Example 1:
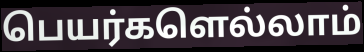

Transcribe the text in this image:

பெயர்களெல்லாம்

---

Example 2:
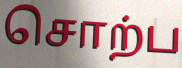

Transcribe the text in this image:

சொற்ப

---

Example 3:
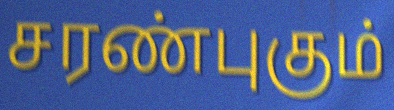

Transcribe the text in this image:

சரண்புகும்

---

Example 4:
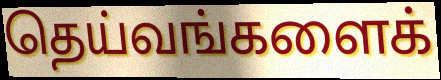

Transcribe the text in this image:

தெய்வங்களைக்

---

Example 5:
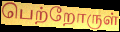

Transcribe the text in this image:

பெற்றோருள்